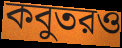
কবুতরও